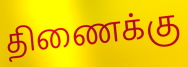
திணைக்கு